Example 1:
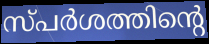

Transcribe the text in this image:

സ്പർശത്തിന്റെ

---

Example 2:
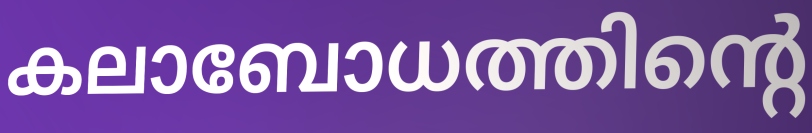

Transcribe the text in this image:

കലാബോധത്തിന്റെ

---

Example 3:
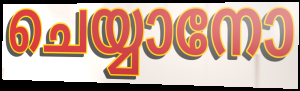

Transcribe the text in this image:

ചെയ്യാനോ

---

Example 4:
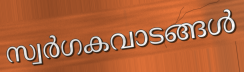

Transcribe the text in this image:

സ്വർഗകവാടങ്ങൾ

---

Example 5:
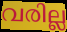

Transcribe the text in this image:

വരില്ല